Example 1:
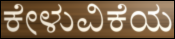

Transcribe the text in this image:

ಕೇಳುವಿಕೆಯ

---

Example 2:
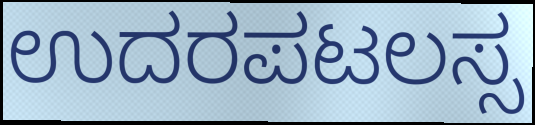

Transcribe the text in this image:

ಉದರಪಟಲಸ್ಸ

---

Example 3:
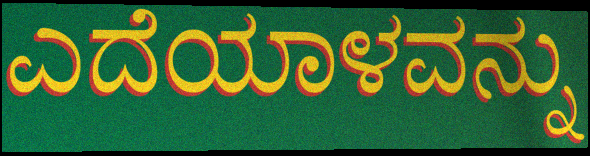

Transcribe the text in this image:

ಎದೆಯಾಳವನ್ನು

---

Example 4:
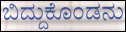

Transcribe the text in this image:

ಬಿದ್ದುಕೊಂಡನು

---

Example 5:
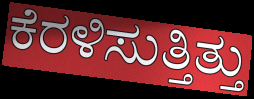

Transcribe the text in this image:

ಕೆರಳಿಸುತ್ತಿತ್ತು